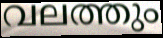
വലത്തും